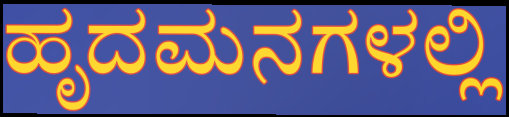
ಹೃದಮನಗಳಲ್ಲಿ